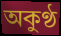
অকুণ্ঠ